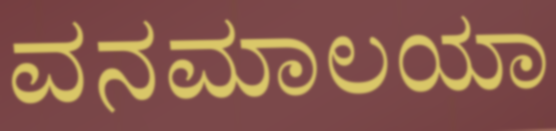
ವನಮಾಲಯಾ